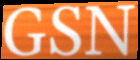
GSN